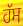
ਹੱਸ